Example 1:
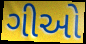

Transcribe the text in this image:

ગીઓ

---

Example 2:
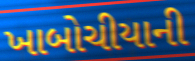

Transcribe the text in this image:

ખાબોચીયાની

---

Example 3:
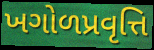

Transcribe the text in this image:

ખગોળપ્રવૃત્તિ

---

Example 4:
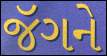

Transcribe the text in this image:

જૅગને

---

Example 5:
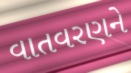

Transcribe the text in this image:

વાતવરણને